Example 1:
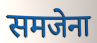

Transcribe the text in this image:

समजेना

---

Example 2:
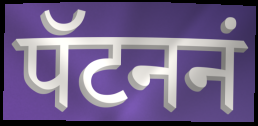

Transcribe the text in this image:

पॅटननं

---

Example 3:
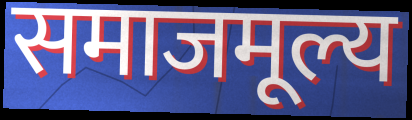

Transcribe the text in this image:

समाजमूल्य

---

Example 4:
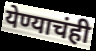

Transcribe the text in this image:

येण्याचंही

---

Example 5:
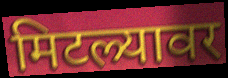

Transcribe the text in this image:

मिटल्यावर